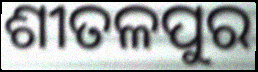
ଶୀତଳପୁର